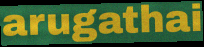
arugathai